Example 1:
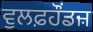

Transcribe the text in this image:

ਵੁਲਫ਼ਹੌਂਡਜ਼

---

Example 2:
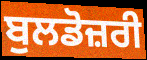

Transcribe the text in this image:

ਬੁਲਡੋਜ਼ਰੀ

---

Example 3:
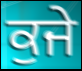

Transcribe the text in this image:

ਕੁਜੇ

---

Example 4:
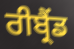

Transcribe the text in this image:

ਰੀਬ੍ਰੈਂਡ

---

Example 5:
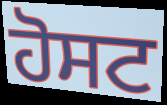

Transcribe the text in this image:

ਹੋਸਟ